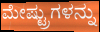
ಮೇಷ್ಟ್ರುಗಳನ್ನು